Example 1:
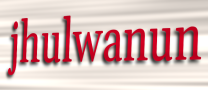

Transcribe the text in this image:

jhulwanun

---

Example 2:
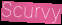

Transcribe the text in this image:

Scurvy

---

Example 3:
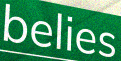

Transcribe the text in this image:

belies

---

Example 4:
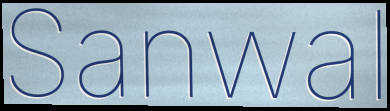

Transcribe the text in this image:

Sanwal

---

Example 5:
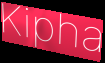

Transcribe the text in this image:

Kipha